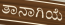
ತಾನಾಗಿಯೆ